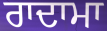
ਰਾਦਾਮਾ